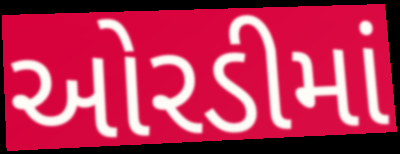
ઓરડીમાં